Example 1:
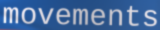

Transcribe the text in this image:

movements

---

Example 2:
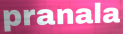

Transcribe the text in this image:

pranala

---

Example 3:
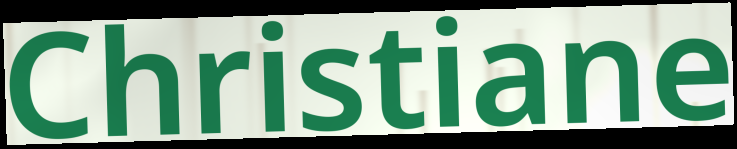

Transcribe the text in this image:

Christiane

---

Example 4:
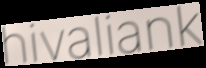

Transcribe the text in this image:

hivaliank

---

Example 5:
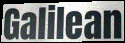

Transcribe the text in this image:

Galilean